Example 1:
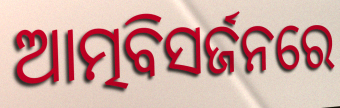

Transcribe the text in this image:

ଆତ୍ମବିସର୍ଜନରେ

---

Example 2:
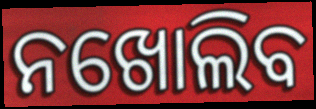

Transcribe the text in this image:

ନଖୋଲିବ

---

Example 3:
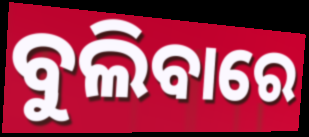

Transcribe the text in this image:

ବୁଲିବାରେ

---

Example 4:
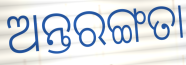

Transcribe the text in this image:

ଅନ୍ତରଙ୍ଗତା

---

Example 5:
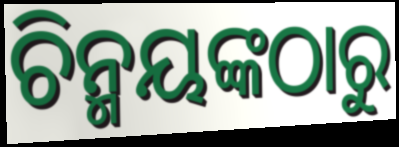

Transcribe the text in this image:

ଚିନ୍ମୟଙ୍କଠାରୁ